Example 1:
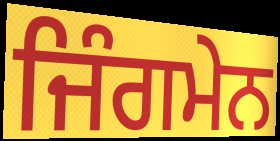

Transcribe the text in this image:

ਜਿੰਗਮੇਨ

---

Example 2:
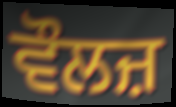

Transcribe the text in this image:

ਵੌਲਜ਼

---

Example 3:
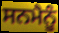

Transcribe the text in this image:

ਸਨਮੈਨੂੰ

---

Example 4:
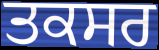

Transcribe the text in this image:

ਤਕਸਰ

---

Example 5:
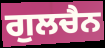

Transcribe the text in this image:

ਗੁਲਚੈਨ